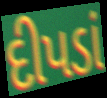
દીપડાં